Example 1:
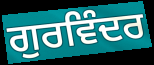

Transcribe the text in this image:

ਗੁਰਵਿੰਦਰ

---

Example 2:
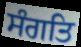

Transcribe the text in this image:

ਸੰਗਤਿ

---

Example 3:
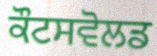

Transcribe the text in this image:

ਕੌਟਸਵੋਲਡ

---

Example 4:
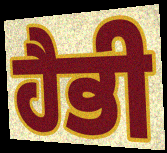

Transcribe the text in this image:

ਹੈਭੀ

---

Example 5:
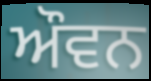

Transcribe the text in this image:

ਔਵਨ